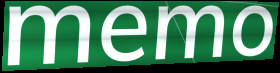
memo